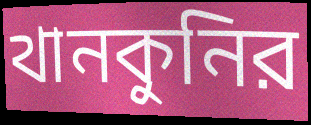
থানকুনির